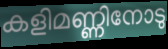
കളിമണ്ണിനോടു